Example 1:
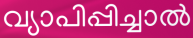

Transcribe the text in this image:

വ്യാപിപ്പിച്ചാൽ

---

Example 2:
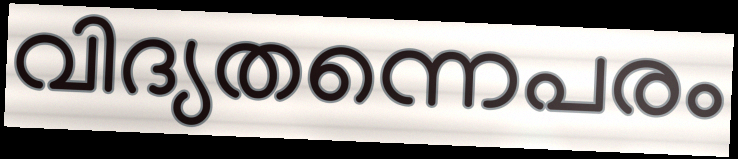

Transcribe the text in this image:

വിദ്യതന്നെപരം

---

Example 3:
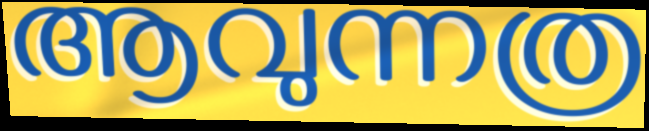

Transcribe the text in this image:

ആവുന്നത്ര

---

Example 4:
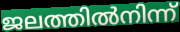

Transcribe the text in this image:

ജലത്തിൽനിന്ന്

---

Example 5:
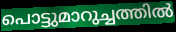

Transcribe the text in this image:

പൊട്ടുമാറുച്ചത്തിൽ